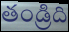
తండ్రిది